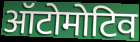
ऑटोमोटिव